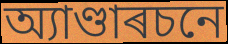
অ্যাণ্ডাৰচনে